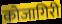
कोजागिरी